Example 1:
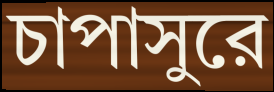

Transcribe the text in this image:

চাপাসুরে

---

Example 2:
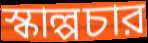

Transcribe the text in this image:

স্কাল্পচার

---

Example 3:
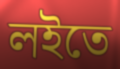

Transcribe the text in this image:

লইতে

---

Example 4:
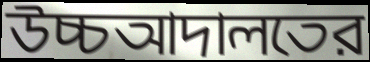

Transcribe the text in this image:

উচ্চআদালতের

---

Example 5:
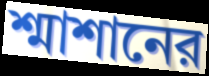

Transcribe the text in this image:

শ্মাশানের